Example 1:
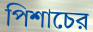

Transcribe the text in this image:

পিশাচের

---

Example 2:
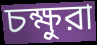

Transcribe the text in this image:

চক্ষুরা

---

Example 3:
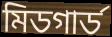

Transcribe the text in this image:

মিডগার্ড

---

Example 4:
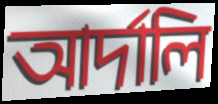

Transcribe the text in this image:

আর্দালি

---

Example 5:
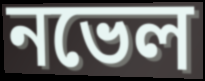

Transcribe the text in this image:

নভেল